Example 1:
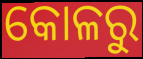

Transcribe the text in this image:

କୋଳରୁ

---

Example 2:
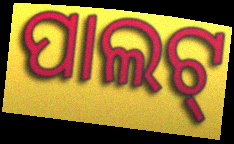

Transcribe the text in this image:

ପାଲଟ୍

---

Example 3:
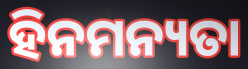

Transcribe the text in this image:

ହିନମନ୍ୟତା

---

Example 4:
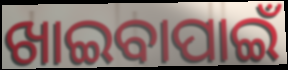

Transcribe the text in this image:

ଖାଇବାପାଇଁ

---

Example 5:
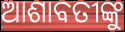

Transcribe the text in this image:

ଆଶାବତୀଙ୍କୁ